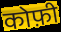
कोफ़ी